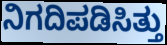
ನಿಗದಿಪಡಿಸಿತ್ತು